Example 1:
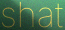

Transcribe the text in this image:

shat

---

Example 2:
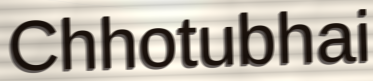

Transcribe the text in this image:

Chhotubhai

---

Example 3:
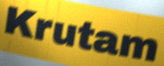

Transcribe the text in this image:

Krutam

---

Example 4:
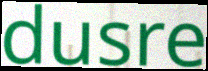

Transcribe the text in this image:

dusre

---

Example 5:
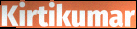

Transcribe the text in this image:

Kirtikumar